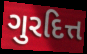
ગુરદિત્ત